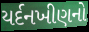
યર્દનખીણનો